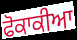
ਫੋਕਾਕੀਆ